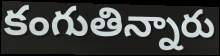
కంగుతిన్నారు